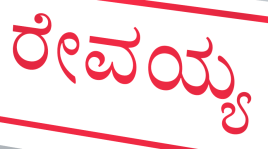
ರೇವಯ್ಯ